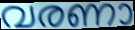
വരണാ